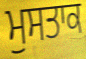
ਮੁਸਤਾਕ